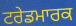
ਟਰੇਡਮਾਰਕ